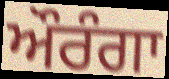
ਔਰੰਗਾ